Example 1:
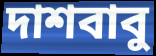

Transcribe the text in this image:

দাশবাবু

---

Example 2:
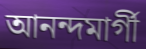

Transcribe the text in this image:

আনন্দমার্গী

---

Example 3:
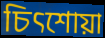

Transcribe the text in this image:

চিৎশোয়া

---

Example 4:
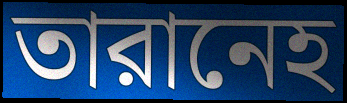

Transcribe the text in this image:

তারানেহ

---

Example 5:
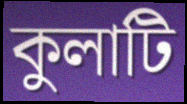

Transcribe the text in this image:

কুলাটি